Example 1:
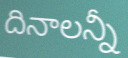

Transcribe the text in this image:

దినాలన్నీ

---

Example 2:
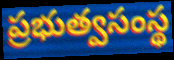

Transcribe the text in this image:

ప్రభుత్వసంస్థ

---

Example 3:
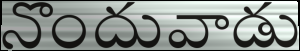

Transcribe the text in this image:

నొందువాడు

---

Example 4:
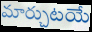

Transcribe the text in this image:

మార్చుటయే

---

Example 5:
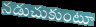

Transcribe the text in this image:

నడుచుకుంటూ